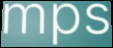
mps